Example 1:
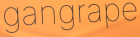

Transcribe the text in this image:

gangrape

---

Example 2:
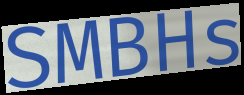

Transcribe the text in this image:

SMBHs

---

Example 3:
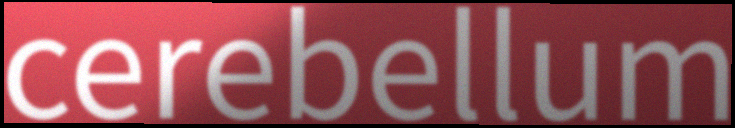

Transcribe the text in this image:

cerebellum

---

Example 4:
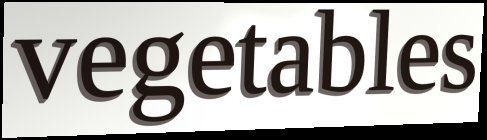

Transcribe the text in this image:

vegetables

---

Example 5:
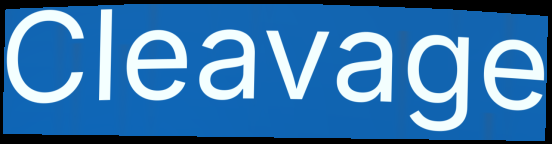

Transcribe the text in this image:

Cleavage